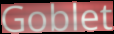
Goblet